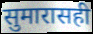
सुमारासही